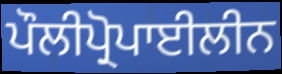
ਪੌਲੀਪ੍ਰੋਪਾਈਲੀਨ